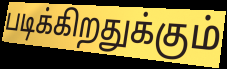
படிக்கிறதுக்கும்